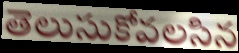
తెలుసుకోవలసిన